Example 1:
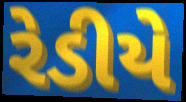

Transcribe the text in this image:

રેડીયે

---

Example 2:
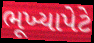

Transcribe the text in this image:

ભૂખ્યાપેટે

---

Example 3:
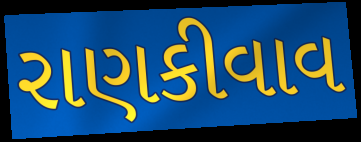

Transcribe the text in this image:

રાણકીવાવ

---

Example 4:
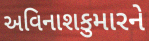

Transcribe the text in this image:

અવિનાશકુમારને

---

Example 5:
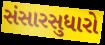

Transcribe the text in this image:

સંસારસુધારો